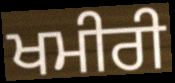
ਖਮੀਰੀ